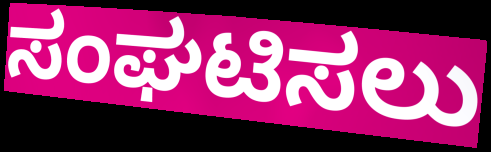
ಸಂಘಟಿಸಲು